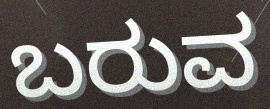
ಬರುವ